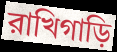
রাখিগাড়ি